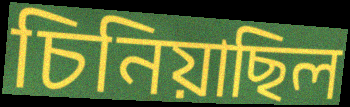
চিনিয়াছিল